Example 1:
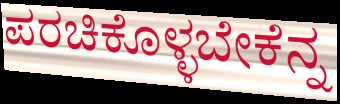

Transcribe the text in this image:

ಪರಚಿಕೊಳ್ಳಬೇಕೆನ್ನ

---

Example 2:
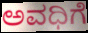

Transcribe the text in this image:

ಅವಧಿಗೆ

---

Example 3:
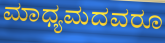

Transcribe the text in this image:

ಮಾಧ್ಯಮದವರೂ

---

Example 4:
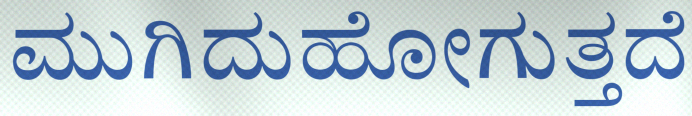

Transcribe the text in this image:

ಮುಗಿದುಹೋಗುತ್ತದೆ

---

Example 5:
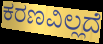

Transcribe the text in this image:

ಕರಣವಿಲ್ಲದೆ